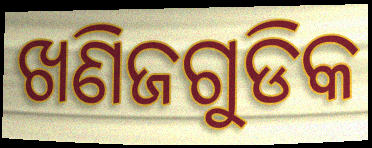
ଖଣିଜଗୁଡିକ